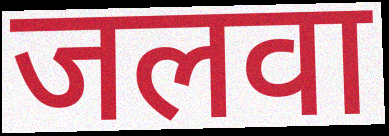
जलवा